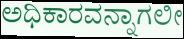
ಅಧಿಕಾರವನ್ನಾಗಲೀ